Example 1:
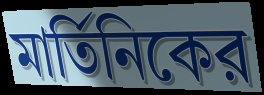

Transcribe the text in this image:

মার্তিনিকের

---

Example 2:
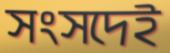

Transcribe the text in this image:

সংসদেই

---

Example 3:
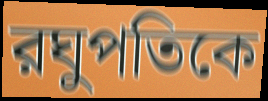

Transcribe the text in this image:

রঘুপতিকে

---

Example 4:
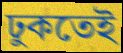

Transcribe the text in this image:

ঢুকতেই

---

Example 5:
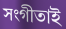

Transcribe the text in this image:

সংগীতাই